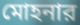
মোহনার